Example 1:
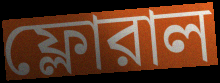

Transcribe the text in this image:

ফ্লোরাল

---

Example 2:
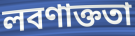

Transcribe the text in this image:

লবণাক্ততা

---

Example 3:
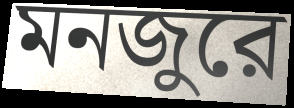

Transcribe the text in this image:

মনজুরে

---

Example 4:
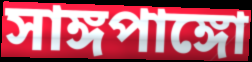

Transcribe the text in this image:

সাঙ্গপাঙ্গো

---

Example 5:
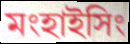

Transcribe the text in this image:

মংহাইসিং